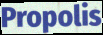
Propolis